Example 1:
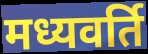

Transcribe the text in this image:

मध्यवर्ति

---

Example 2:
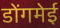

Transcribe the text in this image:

डोंगमेई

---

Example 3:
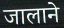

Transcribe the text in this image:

जालाने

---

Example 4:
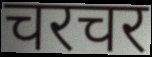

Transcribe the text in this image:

चरचर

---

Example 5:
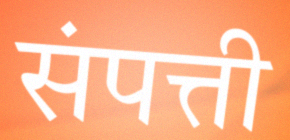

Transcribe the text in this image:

संपत्ती